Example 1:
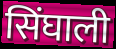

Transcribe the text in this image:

सिंघाली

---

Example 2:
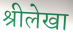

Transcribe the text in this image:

श्रीलेखा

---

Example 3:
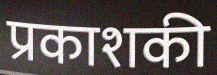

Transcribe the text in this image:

प्रकाशकी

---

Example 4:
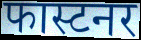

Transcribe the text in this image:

फास्टनर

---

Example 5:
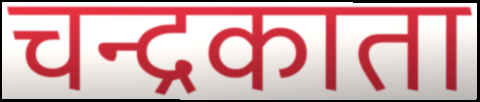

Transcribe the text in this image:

चन्द्रकाता